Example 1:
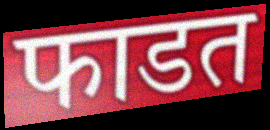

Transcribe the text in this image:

फाडत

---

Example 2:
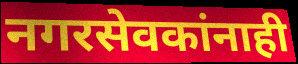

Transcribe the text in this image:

नगरसेवकांनाही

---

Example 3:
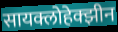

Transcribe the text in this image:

सायक्लोहेक्झीन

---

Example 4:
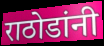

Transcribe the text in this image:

राठोडांनी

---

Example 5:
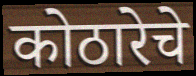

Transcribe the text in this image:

कोठारेचे